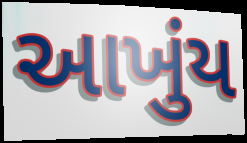
આખુંય